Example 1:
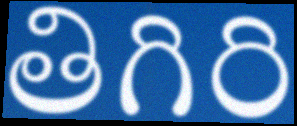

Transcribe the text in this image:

తిగిరి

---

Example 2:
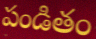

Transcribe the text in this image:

పండితం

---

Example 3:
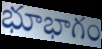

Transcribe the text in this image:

భూభాగం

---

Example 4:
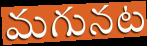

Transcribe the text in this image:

మగునట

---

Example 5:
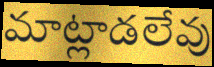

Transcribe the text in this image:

మాట్లాడలేవు